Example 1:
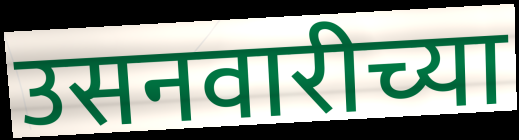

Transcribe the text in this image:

उसनवारीच्या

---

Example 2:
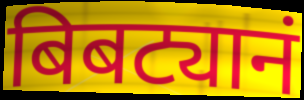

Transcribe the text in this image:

बिबट्यानं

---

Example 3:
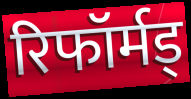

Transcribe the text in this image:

रिफॉर्मड्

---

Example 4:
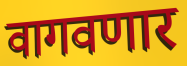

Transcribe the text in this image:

वागवणार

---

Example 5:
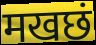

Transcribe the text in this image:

मखछं